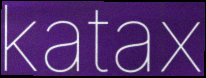
katax